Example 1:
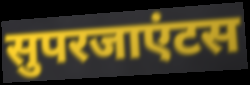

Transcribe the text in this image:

सुपरजाएंटस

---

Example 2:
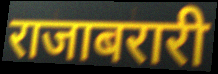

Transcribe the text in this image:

राजाबरारी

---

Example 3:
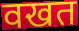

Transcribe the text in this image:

वखत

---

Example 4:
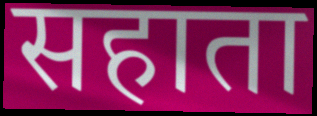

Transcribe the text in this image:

सहाता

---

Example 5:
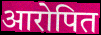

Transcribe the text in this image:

आरोपित